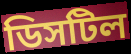
ডিসটিল